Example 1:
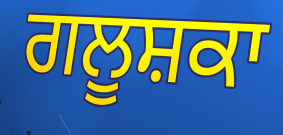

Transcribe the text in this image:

ਗਲੂਸ਼ਕਾ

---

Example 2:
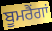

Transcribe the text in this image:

ਬੂਮਰੈਂਗਾਂ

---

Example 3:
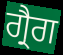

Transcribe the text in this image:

ਗ੍ਰੈਗ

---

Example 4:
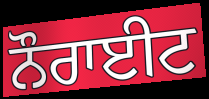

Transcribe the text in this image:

ਨੌਰਾਈਟ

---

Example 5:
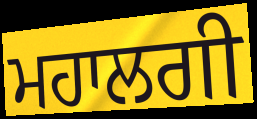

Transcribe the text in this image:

ਮਹਾਲਗੀ